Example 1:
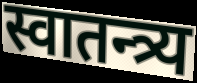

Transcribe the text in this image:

स्वातन्त्र्य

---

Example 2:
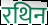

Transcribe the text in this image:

रथिन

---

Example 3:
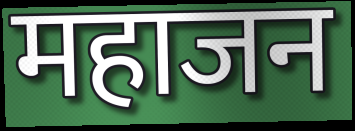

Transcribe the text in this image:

महाजन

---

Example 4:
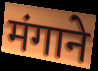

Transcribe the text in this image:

मंगाने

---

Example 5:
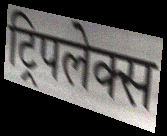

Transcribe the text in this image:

ट्रिपलेक्स